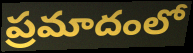
ప్రమాదంలో